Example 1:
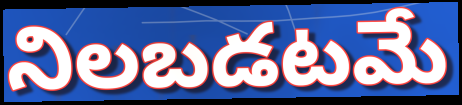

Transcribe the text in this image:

నిలబడటమే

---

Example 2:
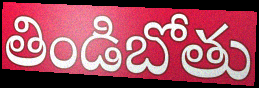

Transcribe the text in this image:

తిండిబోతు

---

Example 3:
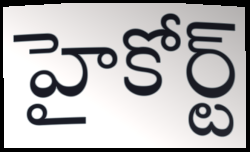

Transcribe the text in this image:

హైకోర్ట్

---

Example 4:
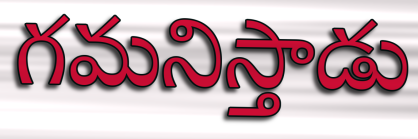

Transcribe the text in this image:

గమనిస్తాడు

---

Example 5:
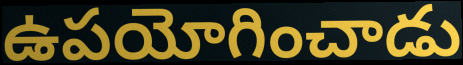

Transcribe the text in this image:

ఉపయోగించాడు